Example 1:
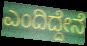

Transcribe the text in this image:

ಎಂದಿದ್ದೇನೆ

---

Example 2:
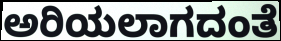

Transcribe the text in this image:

ಅರಿಯಲಾಗದಂತೆ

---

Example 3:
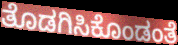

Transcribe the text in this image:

ತೊಡಗಿಸಿಕೊಂಡಂತೆ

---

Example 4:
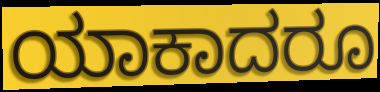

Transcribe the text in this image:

ಯಾಕಾದರೂ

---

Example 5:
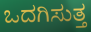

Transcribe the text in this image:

ಒದಗಿಸುತ್ತ